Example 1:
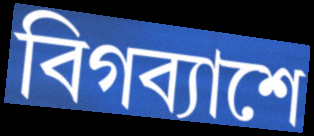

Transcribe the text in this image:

বিগব্যাশে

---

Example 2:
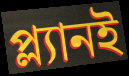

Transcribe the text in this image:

প্ল্যানই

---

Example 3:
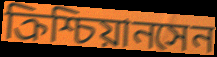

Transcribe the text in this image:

ক্রিশ্চিয়ানসেন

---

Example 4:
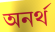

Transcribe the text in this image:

অনর্থ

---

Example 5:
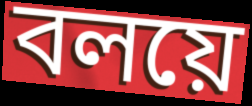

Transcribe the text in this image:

বলয়ে